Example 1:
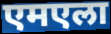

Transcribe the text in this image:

एमएला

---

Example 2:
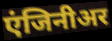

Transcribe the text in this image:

एंजिनीअर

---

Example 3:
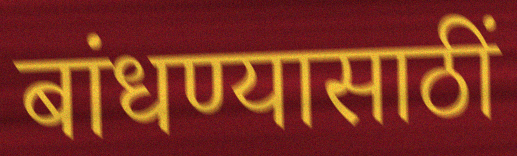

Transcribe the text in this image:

बांधण्यासाठीं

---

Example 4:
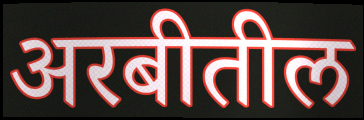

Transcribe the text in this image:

अरबीतील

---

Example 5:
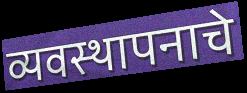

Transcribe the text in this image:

व्यवस्थापनाचे